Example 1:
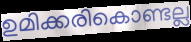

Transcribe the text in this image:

ഉമിക്കരികൊണ്ടല്ല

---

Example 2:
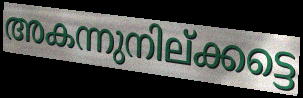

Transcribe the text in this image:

അകന്നുനില്ക്കട്ടെ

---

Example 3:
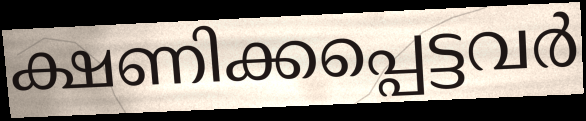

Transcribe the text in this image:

ക്ഷണിക്കപ്പെട്ടവർ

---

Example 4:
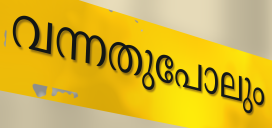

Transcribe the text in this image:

വന്നതുപോലും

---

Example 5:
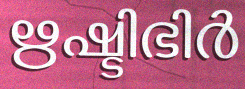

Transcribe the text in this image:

ഋഷ്ടിഭിർ